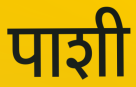
पाशी